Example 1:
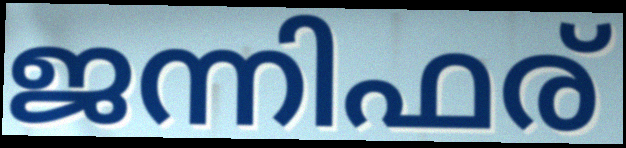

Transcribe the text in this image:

ജന്നിഫര്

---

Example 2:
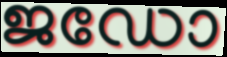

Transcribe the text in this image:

ജഡോ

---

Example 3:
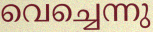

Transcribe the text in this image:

വെച്ചെന്നു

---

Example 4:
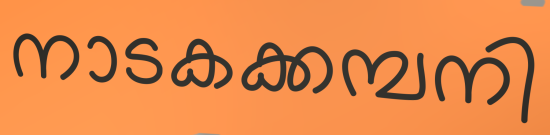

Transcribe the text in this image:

നാടകക്കമ്പനി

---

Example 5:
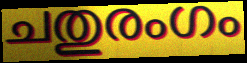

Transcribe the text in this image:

ചതുരംഗം